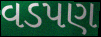
વડપણ